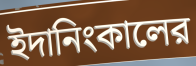
ইদানিংকালের